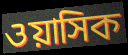
ওয়াসিক